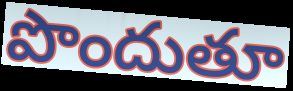
పొందుతూ